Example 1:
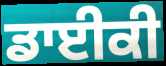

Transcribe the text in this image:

ਡਾਈਕੀ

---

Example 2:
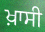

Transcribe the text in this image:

ਖ਼ਾਸੀ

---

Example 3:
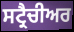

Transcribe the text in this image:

ਸਟ੍ਰੈਚੀਅਰ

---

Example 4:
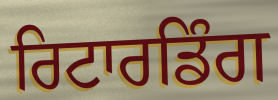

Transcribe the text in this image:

ਰਿਟਾਰਡਿੰਗ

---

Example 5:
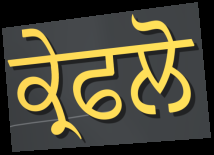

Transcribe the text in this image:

ਕ੍ਰੇਫਲੋ